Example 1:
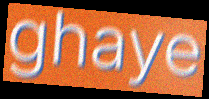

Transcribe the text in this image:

ghaye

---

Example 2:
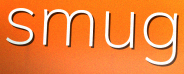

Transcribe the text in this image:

smug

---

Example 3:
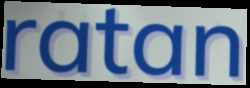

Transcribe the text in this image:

ratan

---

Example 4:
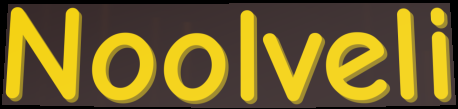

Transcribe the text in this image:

Noolveli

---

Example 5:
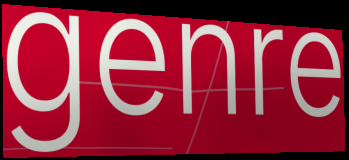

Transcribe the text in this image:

genre